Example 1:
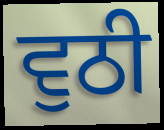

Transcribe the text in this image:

ਵੁਠੀ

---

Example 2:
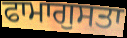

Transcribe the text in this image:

ਫਾਮਾਗੁਸਤਾ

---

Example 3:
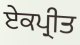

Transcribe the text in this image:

ਏਕਪ੍ਰੀਤ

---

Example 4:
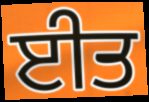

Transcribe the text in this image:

ਈਤ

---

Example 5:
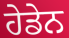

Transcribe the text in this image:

ਹੇਡੇਨ